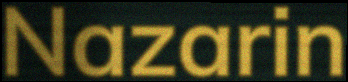
Nazarin